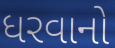
ધરવાનો